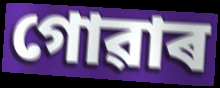
গোৱাৰ